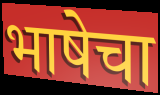
भाषेचा